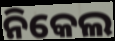
ନିକେଲ